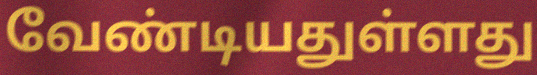
வேண்டியதுள்ளது